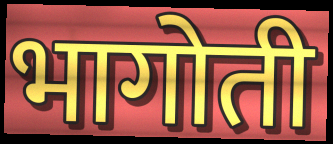
भागोती